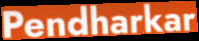
Pendharkar